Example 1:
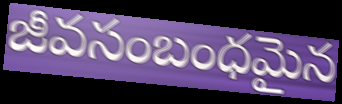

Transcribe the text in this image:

జీవసంబంధమైన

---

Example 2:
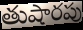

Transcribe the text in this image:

తుషారపు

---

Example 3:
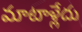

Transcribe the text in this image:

మాటాళ్లేదు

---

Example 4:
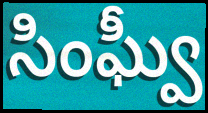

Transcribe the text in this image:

సింఘ్వీ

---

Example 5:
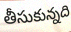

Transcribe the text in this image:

తీసుకున్నది